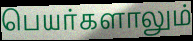
பெயர்களாலும்